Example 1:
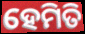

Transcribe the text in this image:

ହେମିତି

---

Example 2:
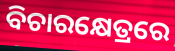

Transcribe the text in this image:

ବିଚାରକ୍ଷେତ୍ରରେ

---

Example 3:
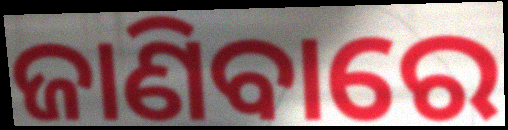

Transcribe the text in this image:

ଜାଣିବାରେ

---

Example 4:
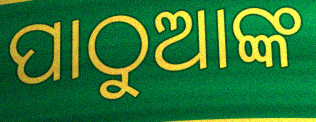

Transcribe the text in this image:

ପାଠୁଆଙ୍କ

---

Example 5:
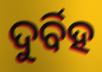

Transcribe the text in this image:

ଦୁର୍ବିହ